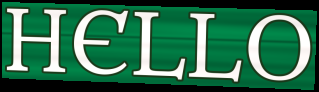
HELLO